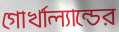
গোর্খাল্যান্ডের